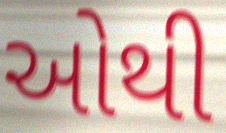
ઓથી